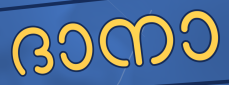
ദാനാ